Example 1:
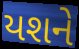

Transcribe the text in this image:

યશને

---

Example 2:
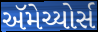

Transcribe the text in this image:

ઍમેચ્યોર્સ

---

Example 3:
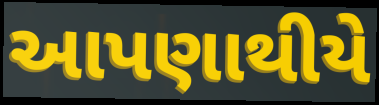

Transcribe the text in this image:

આપણાથીયે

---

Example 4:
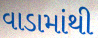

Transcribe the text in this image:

વાડામાંથી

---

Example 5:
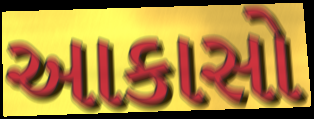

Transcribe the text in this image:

આકાસો